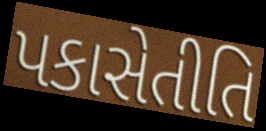
પકાસેતીતિ